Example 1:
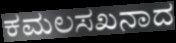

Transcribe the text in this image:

ಕಮಲಸಖನಾದ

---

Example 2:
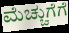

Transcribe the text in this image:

ಮೆಚ್ಚುಗೆಗೆ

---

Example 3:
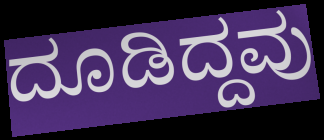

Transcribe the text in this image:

ದೂಡಿದ್ದವು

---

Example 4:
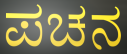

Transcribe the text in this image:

ಪಚನ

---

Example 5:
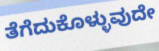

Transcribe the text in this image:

ತೆಗೆದುಕೊಳ್ಳುವುದೇ